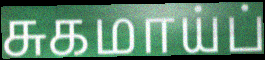
சுகமாய்ப்